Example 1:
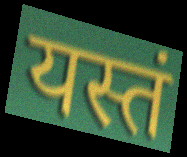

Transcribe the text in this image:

यस्तं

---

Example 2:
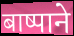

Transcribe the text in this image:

बाष्पाने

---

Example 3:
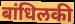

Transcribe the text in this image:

बांधिलकी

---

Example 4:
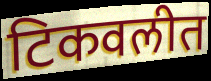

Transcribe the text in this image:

टिकवलीत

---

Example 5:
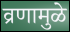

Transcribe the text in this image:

व्रणामुळे